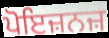
ਪੋਇਜ਼ਨਜ਼